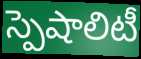
స్పెషాలిటీ